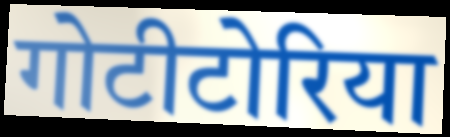
गोटीटोरिया